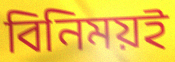
বিনিময়ই